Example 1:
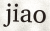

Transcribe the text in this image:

jiao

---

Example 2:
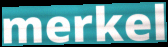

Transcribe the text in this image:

merkel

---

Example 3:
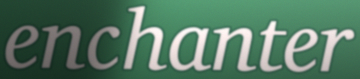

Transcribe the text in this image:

enchanter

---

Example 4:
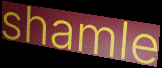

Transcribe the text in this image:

shamle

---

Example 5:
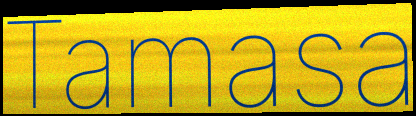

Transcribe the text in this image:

Tamasa